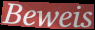
Beweis